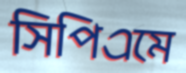
সিপিএমে